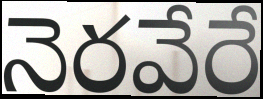
నెరవేరే